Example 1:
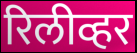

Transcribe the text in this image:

रिलीव्हर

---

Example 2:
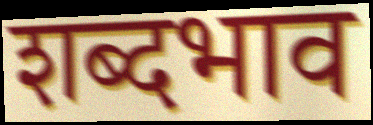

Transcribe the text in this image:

शब्दभाव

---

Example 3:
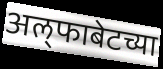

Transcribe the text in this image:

अल्फाबेटच्या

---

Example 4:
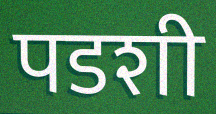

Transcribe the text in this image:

पडशी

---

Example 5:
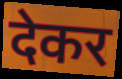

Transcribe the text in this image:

देकर